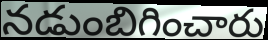
నడుంబిగించారు